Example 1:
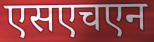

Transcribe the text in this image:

एसएचएन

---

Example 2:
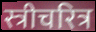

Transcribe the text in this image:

स्त्रीचरित्र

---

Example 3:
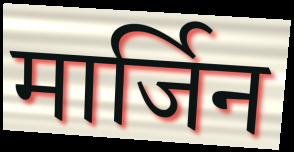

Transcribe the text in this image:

मार्जिन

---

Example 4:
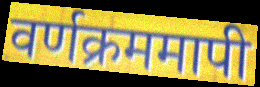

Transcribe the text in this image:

वर्णक्रममापी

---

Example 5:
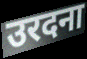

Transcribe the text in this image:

उरदना